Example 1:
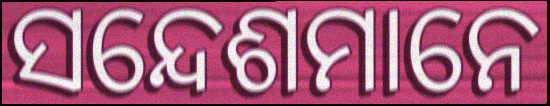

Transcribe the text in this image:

ସନ୍ଦେଶମାନେ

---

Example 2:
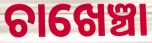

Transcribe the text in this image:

ଚାଖେଞ୍ଚା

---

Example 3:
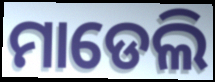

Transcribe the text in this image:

ମାଡେଲି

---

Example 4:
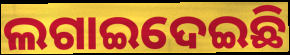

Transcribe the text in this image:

ଲଗାଇଦେଇଛି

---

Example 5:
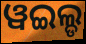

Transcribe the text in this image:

ୱଇଲ୍ଡ